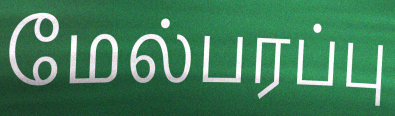
மேல்பரப்பு